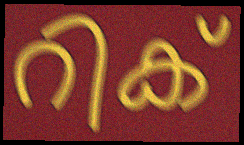
റിക്